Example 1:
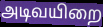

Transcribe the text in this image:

அடிவயிறை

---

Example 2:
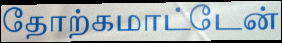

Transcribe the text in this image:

தோற்கமாட்டேன்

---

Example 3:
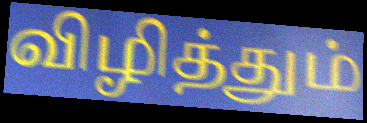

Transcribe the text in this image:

விழித்தும்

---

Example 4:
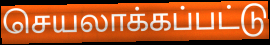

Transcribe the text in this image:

செயலாக்கப்பட்டு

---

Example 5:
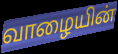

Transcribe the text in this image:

வாழையின்